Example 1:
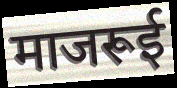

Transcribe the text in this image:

माजरूई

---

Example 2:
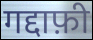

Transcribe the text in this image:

गद्दाफ़ी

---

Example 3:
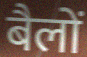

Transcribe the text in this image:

बैलों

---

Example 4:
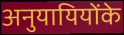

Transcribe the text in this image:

अनुयायियोंके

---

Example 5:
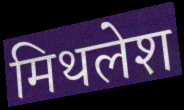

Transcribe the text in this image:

मिथलेश